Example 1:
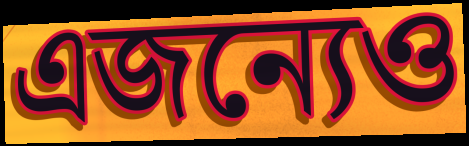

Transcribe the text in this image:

এজন্যেও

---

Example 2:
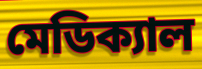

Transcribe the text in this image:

মেডিক্যাল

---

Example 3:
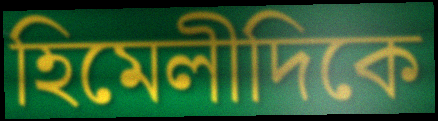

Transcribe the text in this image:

হিমেলীদিকে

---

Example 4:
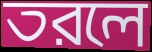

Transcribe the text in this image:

তরলে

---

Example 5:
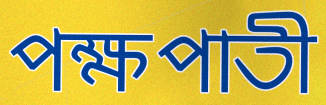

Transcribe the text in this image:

পক্ষপাতী